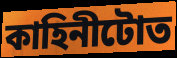
কাহিনীটোত